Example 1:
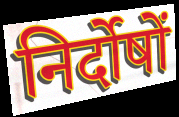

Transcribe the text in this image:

निर्दोषों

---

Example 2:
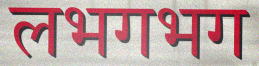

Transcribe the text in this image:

लभगभग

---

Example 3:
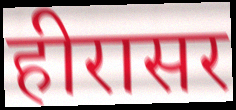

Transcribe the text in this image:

हीरासर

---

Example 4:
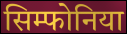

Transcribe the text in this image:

सिम्फोनिया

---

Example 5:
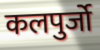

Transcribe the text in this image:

कलपुर्जो